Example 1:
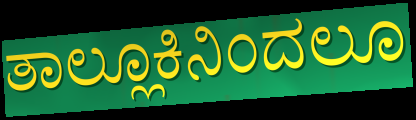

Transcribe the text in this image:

ತಾಲ್ಲೂಕಿನಿಂದಲೂ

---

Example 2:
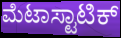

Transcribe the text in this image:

ಮೆಟಾಸ್ಟಾಟಿಕ್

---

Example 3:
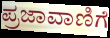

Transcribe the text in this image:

ಪ್ರಜಾವಾಣಿಗೆ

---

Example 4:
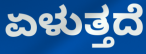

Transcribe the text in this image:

ಏಳುತ್ತದೆ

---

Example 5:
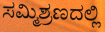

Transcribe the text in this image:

ಸಮ್ಮಿಶ್ರಣದಲ್ಲಿ